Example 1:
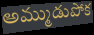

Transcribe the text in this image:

అమ్ముడుపోక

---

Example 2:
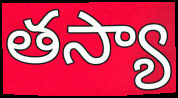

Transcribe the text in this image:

తస్యా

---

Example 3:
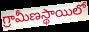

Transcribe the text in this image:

గ్రామీణస్థాయిలో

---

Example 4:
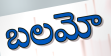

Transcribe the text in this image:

బలమో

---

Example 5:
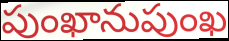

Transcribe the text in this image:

పుంఖానుపుంఖ